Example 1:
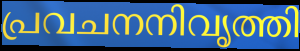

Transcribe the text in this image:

പ്രവചനനിവൃത്തി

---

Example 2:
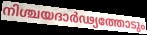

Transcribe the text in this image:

നിശ്ചയദാർഢ്യത്തോടും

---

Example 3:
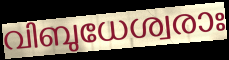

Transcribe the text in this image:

വിബുധേശ്വരാഃ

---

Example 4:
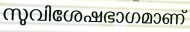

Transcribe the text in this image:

സുവിശേഷഭാഗമാണ്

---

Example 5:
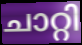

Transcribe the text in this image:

ചാറ്റി